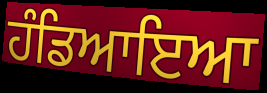
ਹੰਡਿਆਇਆ